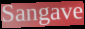
Sangave